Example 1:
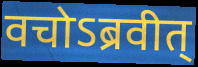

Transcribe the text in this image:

वचोऽब्रवीत्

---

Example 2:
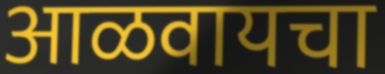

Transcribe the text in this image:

आळवायचा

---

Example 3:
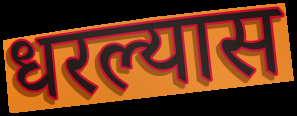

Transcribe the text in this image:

धरल्यास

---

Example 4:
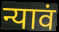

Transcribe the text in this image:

न्यावं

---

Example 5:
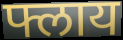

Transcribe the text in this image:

फ्लाय